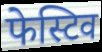
फेस्टिव